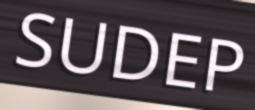
SUDEP